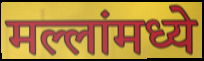
मल्लांमध्ये